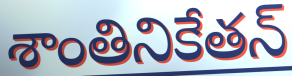
శాంతినికేతన్